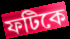
ফটিকে